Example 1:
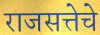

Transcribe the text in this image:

राजसत्तेचे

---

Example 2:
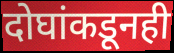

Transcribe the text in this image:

दोघांकडूनही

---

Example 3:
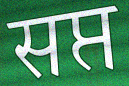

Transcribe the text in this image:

सप्त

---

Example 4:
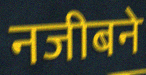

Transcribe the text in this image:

नजीबने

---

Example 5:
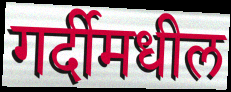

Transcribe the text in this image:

गर्दीमधील